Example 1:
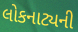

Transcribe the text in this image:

લોકનાટ્યની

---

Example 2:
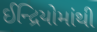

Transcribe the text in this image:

ઈન્દ્રિયોમાંથી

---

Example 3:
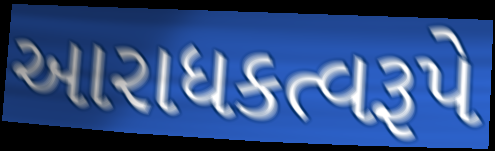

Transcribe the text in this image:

આરાધકત્વરૂપે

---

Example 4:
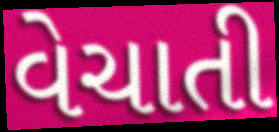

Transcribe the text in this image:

વેચાતી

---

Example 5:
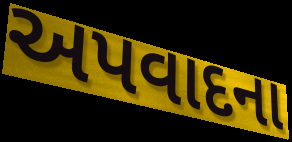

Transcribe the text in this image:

અપવાદના